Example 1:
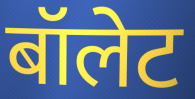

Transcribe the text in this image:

बॉलेट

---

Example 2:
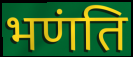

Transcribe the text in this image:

भणंति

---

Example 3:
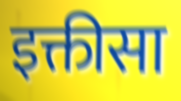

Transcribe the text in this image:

इक्तीसा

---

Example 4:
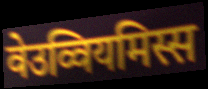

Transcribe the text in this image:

वेउव्वियमिस्स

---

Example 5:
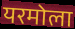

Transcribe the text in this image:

यरमोला